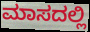
ಮಾಸದಲ್ಲಿ